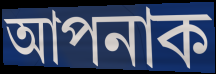
আপনাক